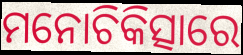
ମନୋଚିକିତ୍ସାରେ